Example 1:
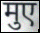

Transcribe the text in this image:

मुए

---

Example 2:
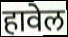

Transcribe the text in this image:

हावेल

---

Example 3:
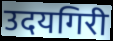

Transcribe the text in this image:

उदयगिरी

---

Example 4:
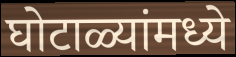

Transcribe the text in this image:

घोटाळ्यांमध्ये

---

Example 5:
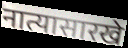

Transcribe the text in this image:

नात्यासारखे